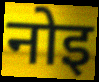
नोइ